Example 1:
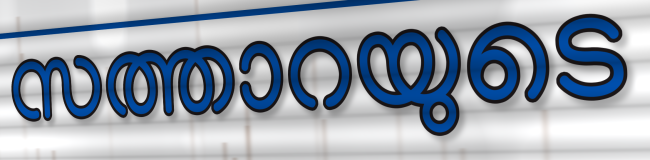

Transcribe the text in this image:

സത്താറയുടെ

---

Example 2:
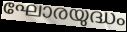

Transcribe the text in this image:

ഘോരയുദ്ധം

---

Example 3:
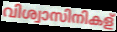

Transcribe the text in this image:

വിശ്വാസിനികള്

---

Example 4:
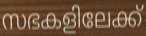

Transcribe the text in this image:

സഭകളിലേക്ക്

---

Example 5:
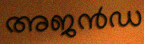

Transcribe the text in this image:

അജൻഡ